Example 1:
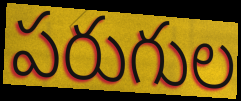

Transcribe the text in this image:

పరుగుల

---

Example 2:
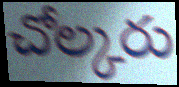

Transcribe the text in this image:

చోల్కరు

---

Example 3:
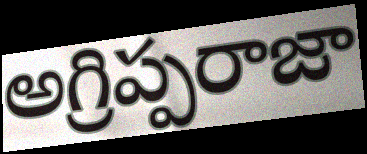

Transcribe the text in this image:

అగ్రిప్పరాజా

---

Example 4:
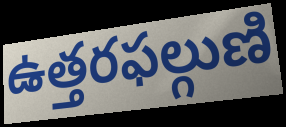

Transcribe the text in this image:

ఉత్తరఫల్గుణి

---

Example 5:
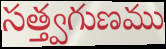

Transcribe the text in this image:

సత్త్వగుణము